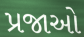
પ્રજાઓ